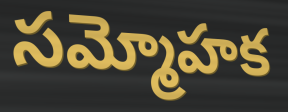
సమ్మోహక